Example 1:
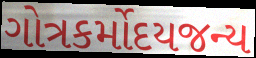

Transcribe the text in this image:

ગોત્રકર્મોદયજન્ય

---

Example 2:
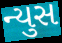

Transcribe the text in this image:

ન્યુસ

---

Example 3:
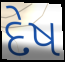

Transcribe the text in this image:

દેષ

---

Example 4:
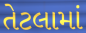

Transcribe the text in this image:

તેટલામાં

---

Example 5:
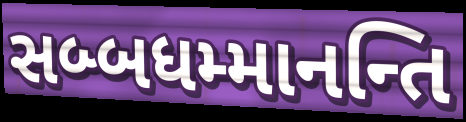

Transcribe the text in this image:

સબ્બધમ્માનન્તિ